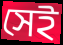
সেই